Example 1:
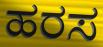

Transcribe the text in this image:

ಹರಸ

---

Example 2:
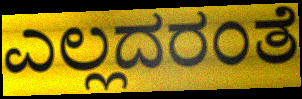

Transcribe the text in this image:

ಎಲ್ಲದರಂತೆ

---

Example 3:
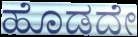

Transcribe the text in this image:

ಹೊಡದೇ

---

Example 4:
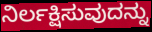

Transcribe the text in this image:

ನಿರ್ಲಕ್ಷಿಸುವುದನ್ನು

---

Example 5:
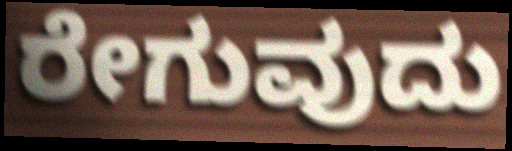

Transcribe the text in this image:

ರೇಗುವುದು